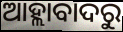
ଆହ୍ଲାବାଦରୁ